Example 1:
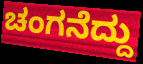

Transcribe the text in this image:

ಚಂಗನೆದ್ದು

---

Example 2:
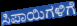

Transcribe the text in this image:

ಸಿಪಾಯಿಗಳಿಗೆ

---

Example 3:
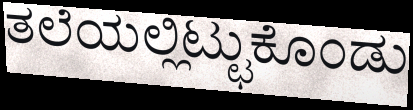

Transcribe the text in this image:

ತಲೆಯಲ್ಲಿಟ್ಟುಕೊಂಡು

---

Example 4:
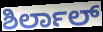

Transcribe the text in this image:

ಶಿರ್ಲಾಲ್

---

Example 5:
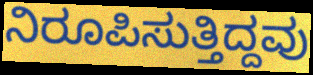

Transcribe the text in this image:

ನಿರೂಪಿಸುತ್ತಿದ್ದವು